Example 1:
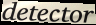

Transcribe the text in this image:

detector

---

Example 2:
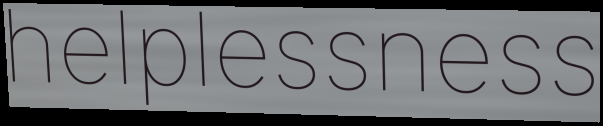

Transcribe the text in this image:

helplessness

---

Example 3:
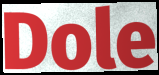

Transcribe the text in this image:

Dole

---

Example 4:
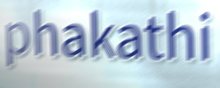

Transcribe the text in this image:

phakathi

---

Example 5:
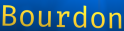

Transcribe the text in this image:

Bourdon